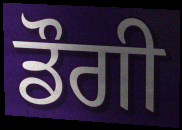
ਡੌਗੀ